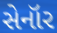
સેનૉર